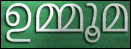
ഉമ്മൂമ